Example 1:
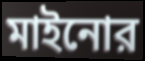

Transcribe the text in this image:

মাইনোর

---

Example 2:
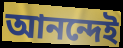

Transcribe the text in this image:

আনন্দেই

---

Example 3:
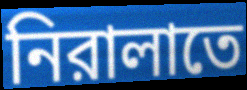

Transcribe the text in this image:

নিরালাতে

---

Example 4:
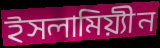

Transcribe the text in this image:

ইসলামিয়্যীন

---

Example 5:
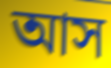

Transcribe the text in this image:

আস